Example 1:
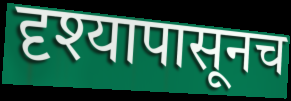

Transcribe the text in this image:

दृश्यापासूनच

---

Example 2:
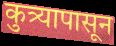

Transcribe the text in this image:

कुत्र्यापासून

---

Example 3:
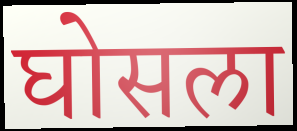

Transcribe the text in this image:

घोसला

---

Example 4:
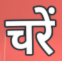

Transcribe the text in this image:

चरें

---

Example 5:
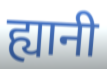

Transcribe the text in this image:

ह्यानी